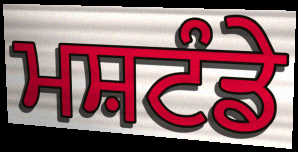
ਮਸ਼ਟੰਡੇ